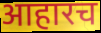
आहारच